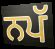
ਨਪੱ